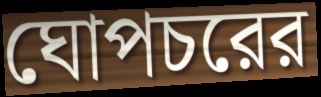
ঘোপচরের